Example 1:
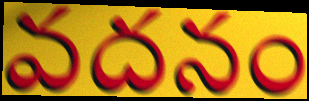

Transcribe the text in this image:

వదనం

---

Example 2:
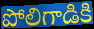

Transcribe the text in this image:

పోలిగాడికి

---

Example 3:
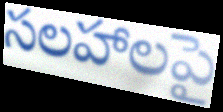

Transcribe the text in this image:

సలహాలపై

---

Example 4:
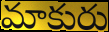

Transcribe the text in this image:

మాకురు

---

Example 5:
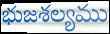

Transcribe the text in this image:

భుజశల్యము